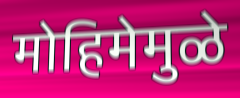
मोहिमेमुळे